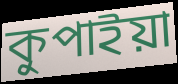
কুপাইয়া